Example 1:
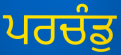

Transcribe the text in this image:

ਪਰਚੰਡੁ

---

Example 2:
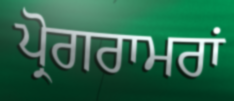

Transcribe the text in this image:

ਪ੍ਰੋਗਰਾਮਰਾਂ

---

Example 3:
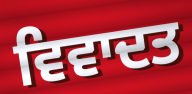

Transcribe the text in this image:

ਵਿਵਾਦਤ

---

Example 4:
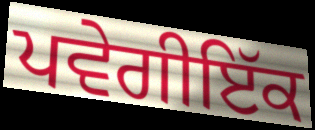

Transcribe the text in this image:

ਪਵੇਗੀਇੱਕ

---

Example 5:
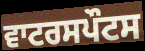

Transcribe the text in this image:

ਵਾਟਰਸਪੌਟਸ